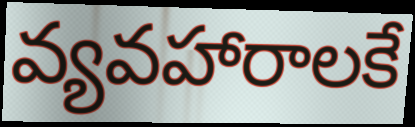
వ్యవహారాలకే